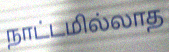
நாட்டமில்லாத